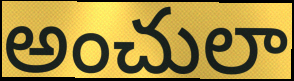
అంచులా